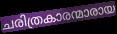
ചരിത്രകാരന്മാരായ